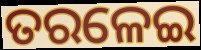
ତରଳେଇ